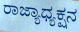
ರಾಜ್ಯಾಧ್ಯಕ್ಷನ